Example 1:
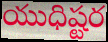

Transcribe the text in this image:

యుధిష్టర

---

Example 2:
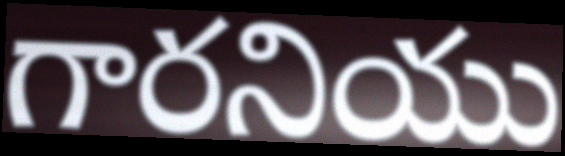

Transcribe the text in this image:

గారనియు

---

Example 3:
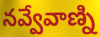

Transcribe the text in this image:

నవ్వేవాణ్ని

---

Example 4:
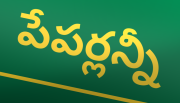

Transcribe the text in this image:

పేపర్లన్నీ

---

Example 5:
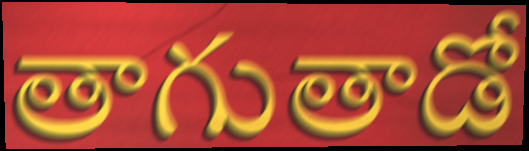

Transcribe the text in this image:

తాగుతాడో